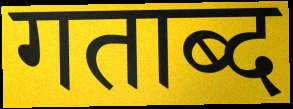
गताब्द